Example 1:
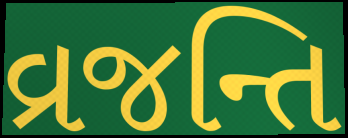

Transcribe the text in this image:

વ્રજન્તિ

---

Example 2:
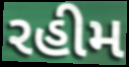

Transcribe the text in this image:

રહીમ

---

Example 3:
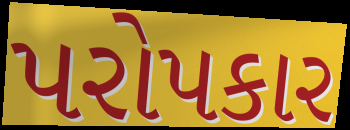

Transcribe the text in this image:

પરોપકાર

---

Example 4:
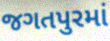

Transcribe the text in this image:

જગતપુરમાં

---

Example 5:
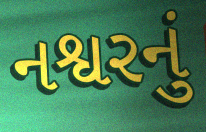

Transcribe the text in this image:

નશ્વરનું